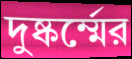
দুষ্কর্ম্মের